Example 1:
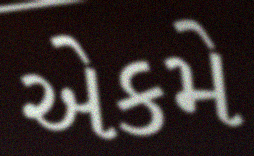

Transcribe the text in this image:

એકમે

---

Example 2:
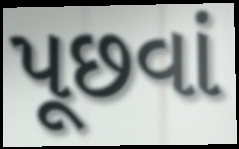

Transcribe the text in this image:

પૂછવાં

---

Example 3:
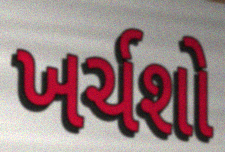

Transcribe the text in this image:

ખર્ચશો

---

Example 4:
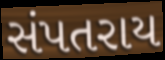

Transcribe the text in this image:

સંપતરાય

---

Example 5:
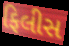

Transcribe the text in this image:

ફિલીસ